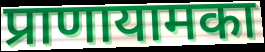
प्राणायामका